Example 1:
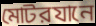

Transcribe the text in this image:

মোটরযানে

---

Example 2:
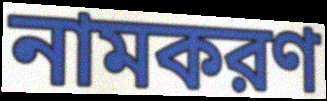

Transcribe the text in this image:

নামকরণ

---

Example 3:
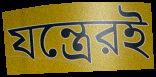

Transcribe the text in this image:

যন্ত্রেরই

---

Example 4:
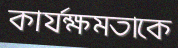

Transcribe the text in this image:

কার্যক্ষমতাকে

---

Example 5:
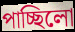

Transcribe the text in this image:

পাচ্ছিলো